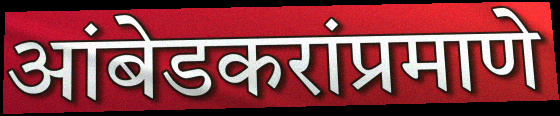
आंबेडकरांप्रमाणे